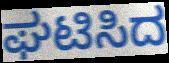
ಘಟಿಸಿದ